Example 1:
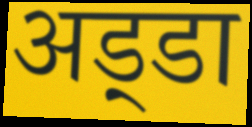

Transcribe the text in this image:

अड्‍डा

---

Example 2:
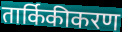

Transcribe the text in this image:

तार्किकीकरण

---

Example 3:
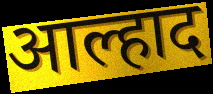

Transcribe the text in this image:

आल्हाद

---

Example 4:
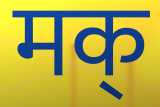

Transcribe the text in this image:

मक्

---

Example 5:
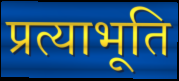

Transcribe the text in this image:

प्रत्याभूति